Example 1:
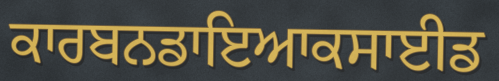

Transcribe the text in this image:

ਕਾਰਬਨਡਾਇਆਕਸਾਈਡ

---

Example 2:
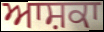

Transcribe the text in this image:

ਆਸ਼ਕਾ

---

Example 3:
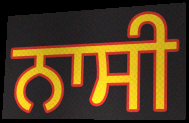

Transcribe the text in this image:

ਨਾਸੀ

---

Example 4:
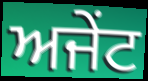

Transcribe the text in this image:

ਅਜੇਂਟ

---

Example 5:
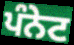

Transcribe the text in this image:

ਪੰਨੇਟ